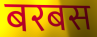
बरबस